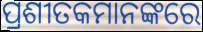
ପ୍ରଶୀତକମାନଙ୍କରେ